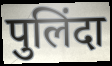
पुलिंदा